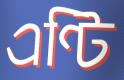
এণ্টি